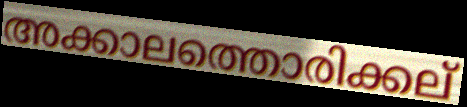
അക്കാലത്തൊരിക്കല്